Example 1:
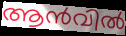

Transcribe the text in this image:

ആൻവിൽ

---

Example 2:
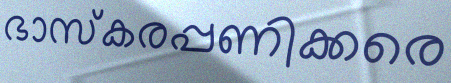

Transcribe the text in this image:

ഭാസ്കരപ്പണിക്കരെ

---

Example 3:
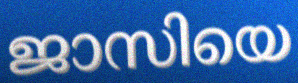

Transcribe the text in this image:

ജാസിയെ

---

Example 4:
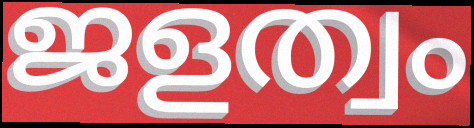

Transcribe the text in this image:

ജളത്വം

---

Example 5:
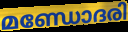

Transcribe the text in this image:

മണ്ഡോദരി